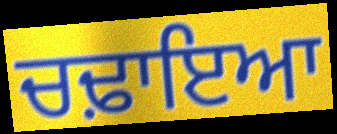
ਚਢ਼ਾਇਆ